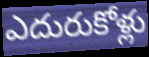
ఎదురుకోళ్లు